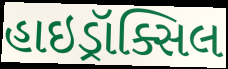
હાઇડ્રૉક્સિલ